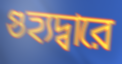
গুহ্যদ্বারে